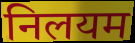
निलयम